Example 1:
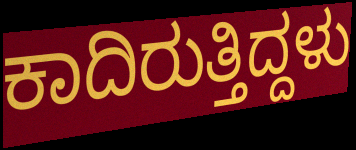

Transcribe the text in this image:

ಕಾದಿರುತ್ತಿದ್ದಳು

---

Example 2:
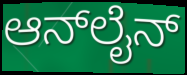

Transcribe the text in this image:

ಆನ್‌ಲೈನ್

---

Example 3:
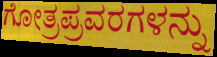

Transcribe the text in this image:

ಗೋತ್ರಪ್ರವರಗಳನ್ನು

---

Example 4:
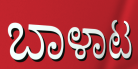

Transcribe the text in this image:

ಬಾಳಾಟ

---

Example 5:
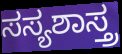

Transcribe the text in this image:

ಸಸ್ಯಶಾಸ್ತ್ರ